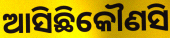
ଆସିଛିକୌଣସି